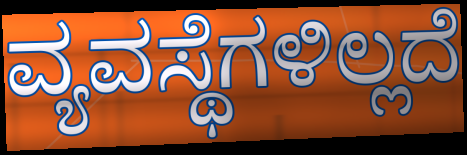
ವ್ಯವಸ್ಥೆಗಳಿಲ್ಲದೆ